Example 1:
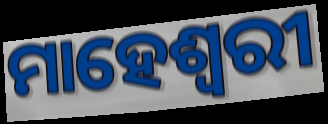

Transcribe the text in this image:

ମାହେଶ୍ଵରୀ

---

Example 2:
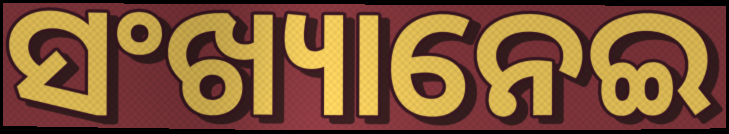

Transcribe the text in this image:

ସଂଖ୍ୟାନେଇ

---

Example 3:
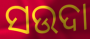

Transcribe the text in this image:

ସଉଦା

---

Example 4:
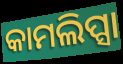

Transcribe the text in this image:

କାମଲିପ୍ସା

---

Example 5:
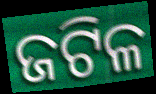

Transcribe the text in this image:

ଜଟିଳ